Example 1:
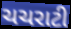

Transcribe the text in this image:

ચચરાટી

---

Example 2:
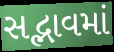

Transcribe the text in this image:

સદ્ભાવમાં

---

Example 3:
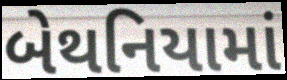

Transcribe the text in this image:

બેથનિયામાં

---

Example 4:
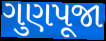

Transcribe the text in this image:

ગુણપૂજા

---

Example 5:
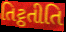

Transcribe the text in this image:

તિટ્ઠતીતિ